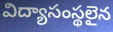
విద్యాసంస్థలైన